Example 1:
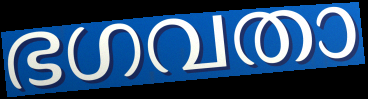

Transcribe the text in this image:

ഭഗവതാ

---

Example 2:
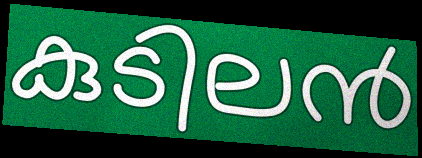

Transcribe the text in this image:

കുടിലൻ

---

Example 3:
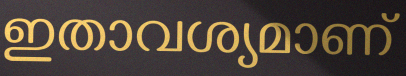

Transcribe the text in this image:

ഇതാവശ്യമാണ്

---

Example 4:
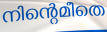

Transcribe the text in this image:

നിന്റെമീതെ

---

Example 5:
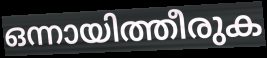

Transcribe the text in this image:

ഒന്നായിത്തീരുക